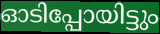
ഓടിപ്പോയിട്ടും